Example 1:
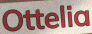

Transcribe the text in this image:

Ottelia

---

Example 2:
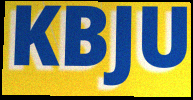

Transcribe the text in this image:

KBJU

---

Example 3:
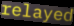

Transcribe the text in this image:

relayed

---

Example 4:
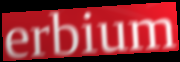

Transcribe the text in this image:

erbium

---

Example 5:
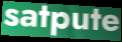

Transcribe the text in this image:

satpute